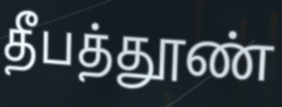
தீபத்தூண்